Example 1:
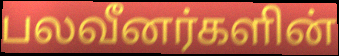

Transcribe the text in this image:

பலவீனர்களின்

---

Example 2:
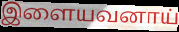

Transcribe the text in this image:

இளையவனாய்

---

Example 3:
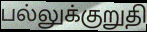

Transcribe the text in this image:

பல்லுக்குறுதி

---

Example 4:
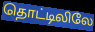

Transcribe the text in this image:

தொட்டிலிலே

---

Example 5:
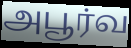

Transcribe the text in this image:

அபூர்வ